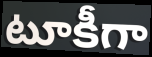
టూకీగా